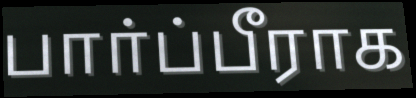
பார்ப்பீராக